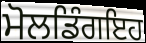
ਮੋਲਡਿੰਗਇਹ